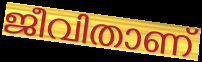
ജീവിതാണ്